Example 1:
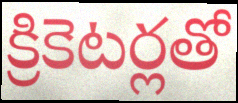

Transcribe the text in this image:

క్రికెటర్లతో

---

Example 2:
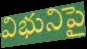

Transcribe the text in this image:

విభునిపై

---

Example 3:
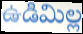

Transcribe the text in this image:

ఉడిమిల్ల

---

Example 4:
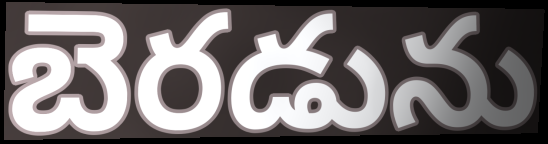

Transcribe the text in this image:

బెరడును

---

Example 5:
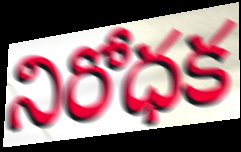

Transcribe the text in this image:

నిరోధక